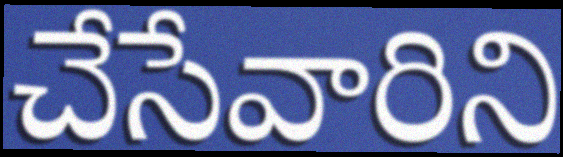
చేసేవారిని